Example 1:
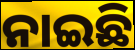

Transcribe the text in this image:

ନାଇଛି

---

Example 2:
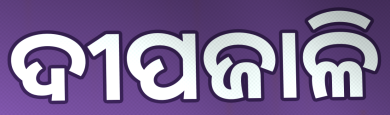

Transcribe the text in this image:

ଦୀପଜାଳି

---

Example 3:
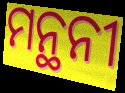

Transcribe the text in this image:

ମନ୍ଥନୀ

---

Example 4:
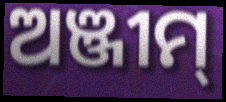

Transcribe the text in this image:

ଅଞ୍ଜୀମ୍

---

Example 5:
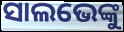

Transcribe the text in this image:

ସାଲଭେଙ୍କୁ